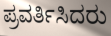
ಪ್ರವರ್ತಿಸಿದರು